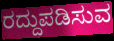
ರದ್ದುಪಡಿಸುವ